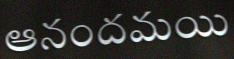
ఆనందమయి